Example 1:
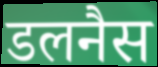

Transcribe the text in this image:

डलनैस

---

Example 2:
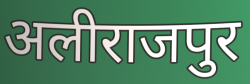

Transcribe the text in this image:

अलीराजपुर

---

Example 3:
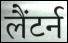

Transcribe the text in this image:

लैंटर्न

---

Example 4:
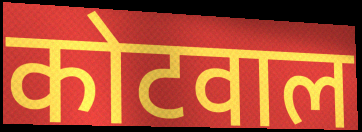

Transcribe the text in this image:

कोटवाल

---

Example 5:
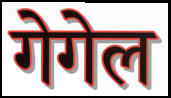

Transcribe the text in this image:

गेगेल